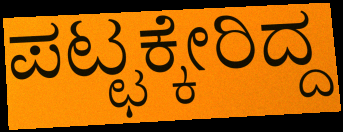
ಪಟ್ಟಕ್ಕೇರಿದ್ದ